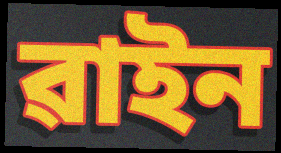
ৱাইন